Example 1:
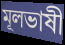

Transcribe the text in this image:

মূলভাষী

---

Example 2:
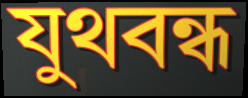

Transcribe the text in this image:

যুথবন্ধ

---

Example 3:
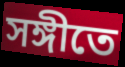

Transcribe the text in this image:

সঙ্গীতে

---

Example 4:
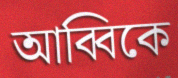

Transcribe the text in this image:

আব্বিকে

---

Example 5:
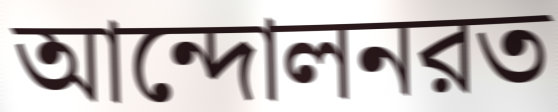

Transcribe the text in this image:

আন্দোলনরত